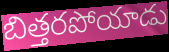
బిత్తరపోయాడు